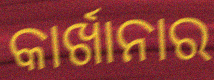
କାର୍ଖାନାର